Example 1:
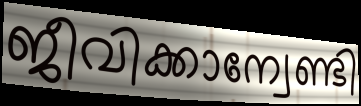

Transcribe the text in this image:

ജീവിക്കാന്വേണ്ടി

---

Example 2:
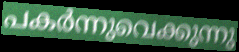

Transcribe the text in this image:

പകർന്നുവെക്കുന്നു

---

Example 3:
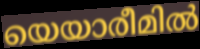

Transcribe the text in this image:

യെയാരീമിൽ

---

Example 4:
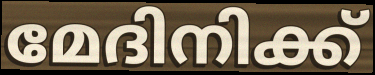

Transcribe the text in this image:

മേദിനിക്ക്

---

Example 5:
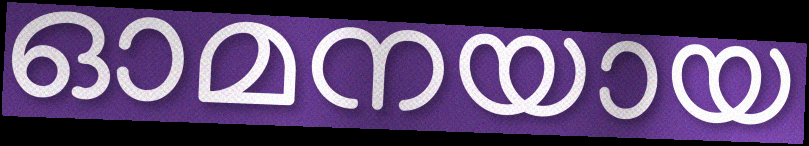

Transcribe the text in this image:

ഓമനയായ